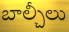
బాల్చీలు